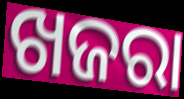
ଖଜରା